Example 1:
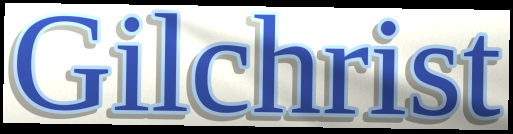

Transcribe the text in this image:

Gilchrist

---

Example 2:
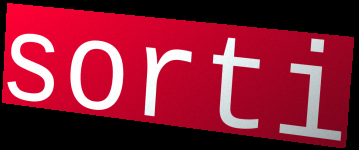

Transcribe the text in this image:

sorti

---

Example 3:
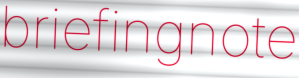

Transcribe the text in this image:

briefingnote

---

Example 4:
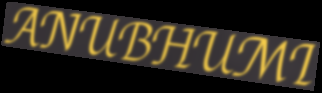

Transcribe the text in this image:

ANUBHUMI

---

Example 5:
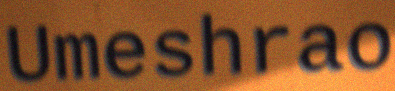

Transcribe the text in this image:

Umeshrao